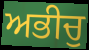
ਅਭੀਚੁ